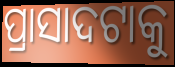
ପ୍ରାସାଦଟାକୁ